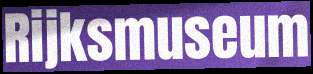
Rijksmuseum